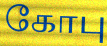
கோபு